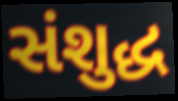
સંશુદ્ધ